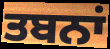
ਤਬਨਾਂ